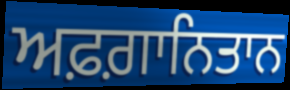
ਅਫ਼ਗ਼ਾਨਿਤਾਨ